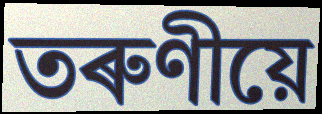
তৰুণীয়ে